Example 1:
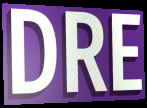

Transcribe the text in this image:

DRE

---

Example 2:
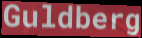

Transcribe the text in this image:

Guldberg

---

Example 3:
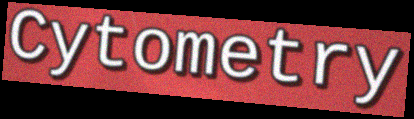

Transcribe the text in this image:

Cytometry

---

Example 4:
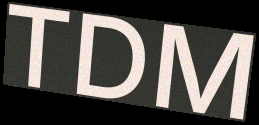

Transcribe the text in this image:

TDM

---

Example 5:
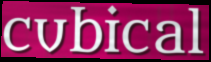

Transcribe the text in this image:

cubical